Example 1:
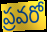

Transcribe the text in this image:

ప్రవరో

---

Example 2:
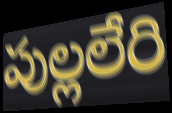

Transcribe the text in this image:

పుల్లలేరి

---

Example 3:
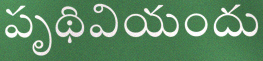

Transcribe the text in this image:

పృథివియందు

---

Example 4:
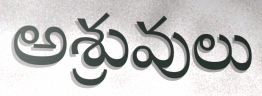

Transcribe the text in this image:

అశ్రువులు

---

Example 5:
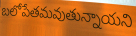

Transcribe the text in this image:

బలోపేతమవుతున్నాయని